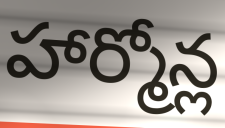
హార్మోన్ల